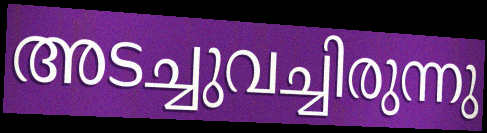
അടച്ചുവച്ചിരുന്നു